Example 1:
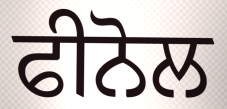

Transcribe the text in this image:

ਫੀਨੋਲ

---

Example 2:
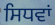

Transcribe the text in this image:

ਸਿਧਵਾਂ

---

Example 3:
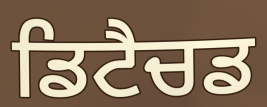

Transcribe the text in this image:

ਡਿਟੈਚਡ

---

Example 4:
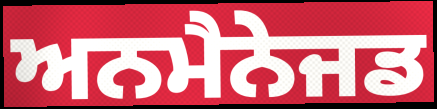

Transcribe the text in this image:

ਅਨਮੈਨੇਜਡ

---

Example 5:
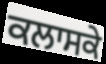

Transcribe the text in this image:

ਕਲਾਸਕੇ